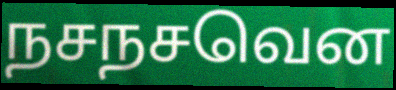
நசநசவென